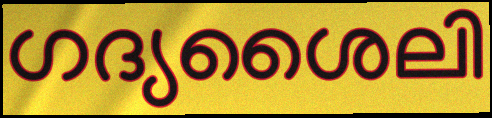
ഗദ്യശൈലി